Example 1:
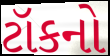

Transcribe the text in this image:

ટૉકનો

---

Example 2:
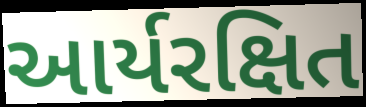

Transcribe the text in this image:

આર્યરક્ષિત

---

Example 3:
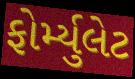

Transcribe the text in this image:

ફોર્મ્યુલેટ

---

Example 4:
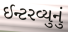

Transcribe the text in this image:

ઈન્ટરવ્યુનું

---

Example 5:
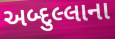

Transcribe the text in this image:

અબ્દુલ્લાના